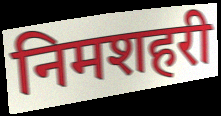
निमशहरी